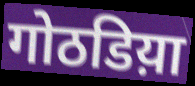
गोठडिय़ा